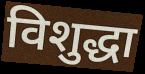
विशुद्धा